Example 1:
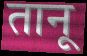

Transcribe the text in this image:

तानू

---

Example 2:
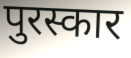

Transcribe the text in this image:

पुरस्कार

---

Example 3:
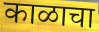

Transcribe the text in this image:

काळाचा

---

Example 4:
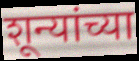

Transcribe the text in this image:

शून्यांच्या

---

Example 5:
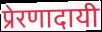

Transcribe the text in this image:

प्रेरणादायी